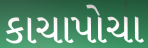
કાચાપોચા